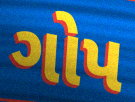
ગોપ